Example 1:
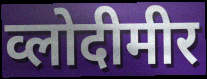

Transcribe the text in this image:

व्लोदीमीर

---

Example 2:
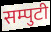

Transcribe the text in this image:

सम्पुटी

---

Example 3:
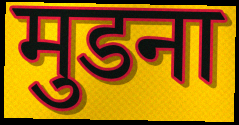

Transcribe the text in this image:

मुडना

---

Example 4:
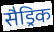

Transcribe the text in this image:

सैड्रिक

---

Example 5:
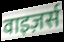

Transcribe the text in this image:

वाइज़र्स